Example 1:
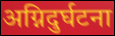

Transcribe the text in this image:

अग्निदुर्घटना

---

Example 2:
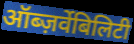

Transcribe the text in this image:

ऑब्ज़र्वेबिलिटी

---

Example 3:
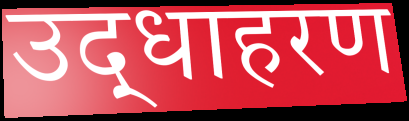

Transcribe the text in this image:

उद्धाहरण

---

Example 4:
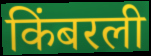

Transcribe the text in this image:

किंबरली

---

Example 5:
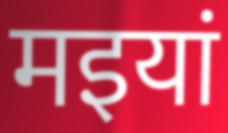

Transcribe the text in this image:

मइयां